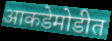
आकडेमोडीत